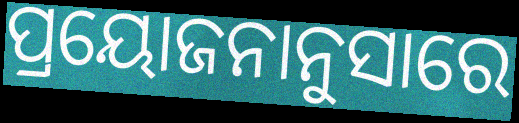
ପ୍ରୟୋଜନାନୁସାରେ